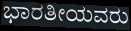
ಭಾರತೀಯವರು